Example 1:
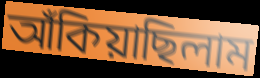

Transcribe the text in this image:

আঁকিয়াছিলাম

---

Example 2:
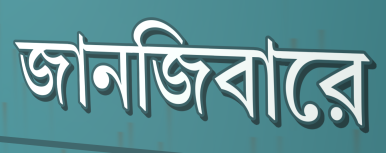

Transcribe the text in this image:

জানজিবারে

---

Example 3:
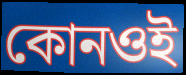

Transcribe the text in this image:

কোনওই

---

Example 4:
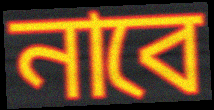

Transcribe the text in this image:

নাবে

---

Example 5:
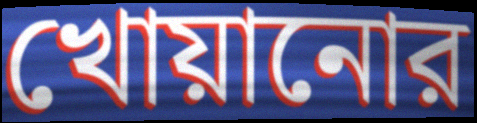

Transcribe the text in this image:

খোয়ানোর